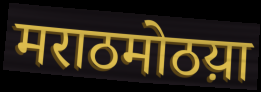
मराठमोठय़ा